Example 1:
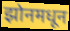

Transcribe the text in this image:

झोनमधून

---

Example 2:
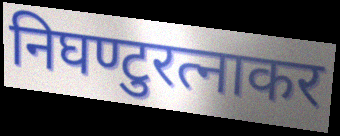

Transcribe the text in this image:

निघण्टुरत्नाकर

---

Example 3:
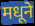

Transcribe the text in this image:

मधूने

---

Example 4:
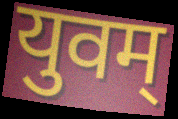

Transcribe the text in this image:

युवम्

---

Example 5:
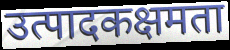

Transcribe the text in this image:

उत्पादकक्षमता